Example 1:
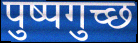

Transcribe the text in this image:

पुष्पगुच्छ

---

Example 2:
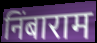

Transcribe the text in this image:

निंबाराम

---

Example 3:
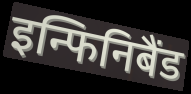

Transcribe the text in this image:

इन्फिनिबैंड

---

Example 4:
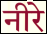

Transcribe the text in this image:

नीरे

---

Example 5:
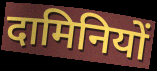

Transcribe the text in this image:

दामिनियों